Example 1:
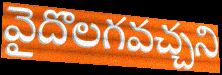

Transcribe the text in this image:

వైదొలగవచ్చని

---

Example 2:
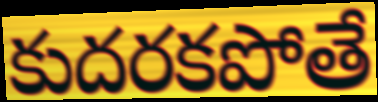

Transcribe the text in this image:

కుదరకపోతే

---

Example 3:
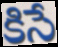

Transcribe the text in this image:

కిసే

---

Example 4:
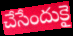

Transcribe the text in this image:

చేసేందుకై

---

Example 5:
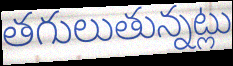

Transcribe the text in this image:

తగులుతున్నట్లు